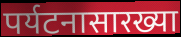
पर्यटनासारख्या